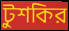
টুশকির